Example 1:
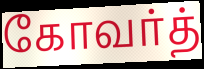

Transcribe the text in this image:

கோவர்த்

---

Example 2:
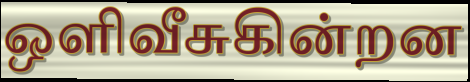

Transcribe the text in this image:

ஒளிவீசுகின்றன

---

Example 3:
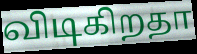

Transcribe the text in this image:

விடிகிறதா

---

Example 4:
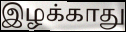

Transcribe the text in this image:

இழக்காது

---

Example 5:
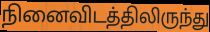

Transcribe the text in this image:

நினைவிடத்திலிருந்து